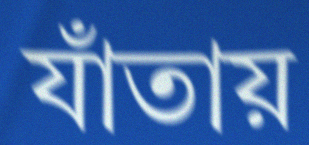
যাঁতায়